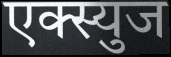
एक्स्युज